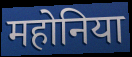
महोनिया